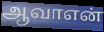
ஆவாஎன்